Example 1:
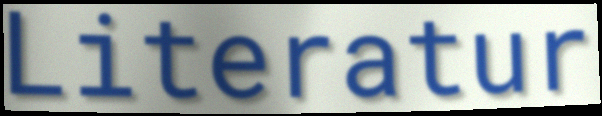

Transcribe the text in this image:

Literatur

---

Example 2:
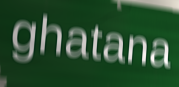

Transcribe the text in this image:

ghatana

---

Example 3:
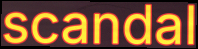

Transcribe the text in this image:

scandal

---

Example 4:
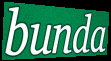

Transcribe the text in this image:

bunda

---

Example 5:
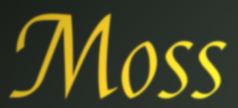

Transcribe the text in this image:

Moss